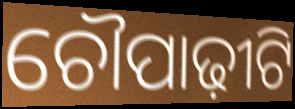
ଚୌପାଢ଼ୀଟି